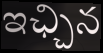
ఇఛ్చిన